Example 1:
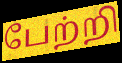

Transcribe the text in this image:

பேற்றி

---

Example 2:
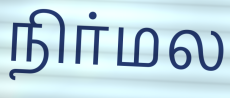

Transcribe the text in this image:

நிர்மல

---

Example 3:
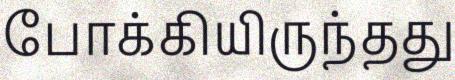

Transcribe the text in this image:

போக்கியிருந்தது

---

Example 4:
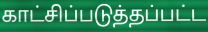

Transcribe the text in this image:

காட்சிப்படுத்தப்பட்ட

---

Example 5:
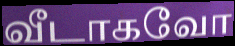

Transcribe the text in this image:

வீடாகவோ